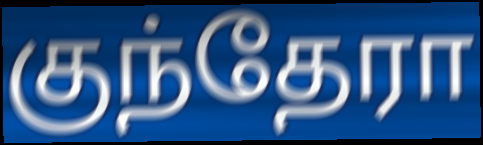
குந்தேரா